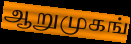
ஆறுமுகங்